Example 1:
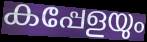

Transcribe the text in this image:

കപ്പേളയും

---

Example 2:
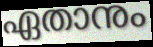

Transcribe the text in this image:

ഏതാനും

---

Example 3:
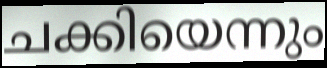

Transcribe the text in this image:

ചക്കിയെന്നും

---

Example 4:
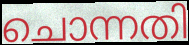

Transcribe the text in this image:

ചൊന്നതി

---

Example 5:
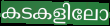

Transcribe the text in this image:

കടകളിലോ